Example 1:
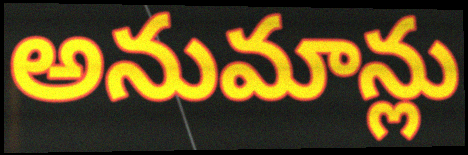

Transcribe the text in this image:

అనుమాన్లు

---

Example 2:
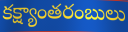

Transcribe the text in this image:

కక్ష్యాంతరంబులు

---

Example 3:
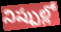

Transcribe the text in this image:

నిప్పుల్లో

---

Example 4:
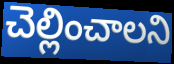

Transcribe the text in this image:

చెల్లించాలని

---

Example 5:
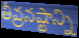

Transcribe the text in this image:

తీవ్రనష్టాన్ని